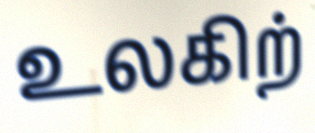
உலகிற்